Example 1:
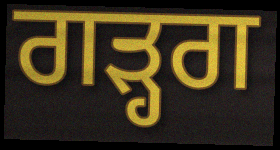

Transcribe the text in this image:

ਗੜ੍ਹਗ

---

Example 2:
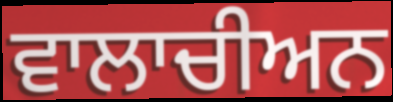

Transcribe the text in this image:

ਵਾਲਾਚੀਅਨ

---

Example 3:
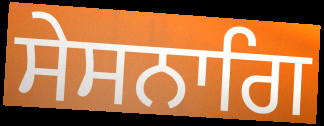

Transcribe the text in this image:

ਸੇਸਨਾਗਿ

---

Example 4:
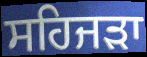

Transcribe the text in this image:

ਸਹਿਜੜਾ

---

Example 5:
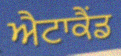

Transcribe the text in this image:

ਐਟਾਕੈਂਡ